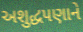
અશુદ્ધપણાને